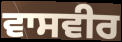
ਵਾਸਵੀਰ